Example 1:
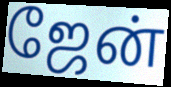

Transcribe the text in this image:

ஜேன்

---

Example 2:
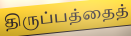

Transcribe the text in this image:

திருப்பத்தைத்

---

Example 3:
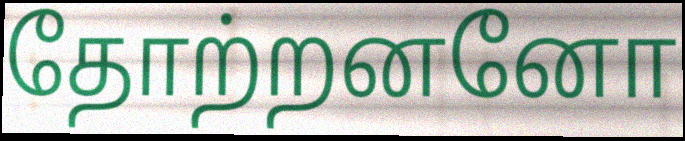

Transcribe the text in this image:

தோற்றனனோ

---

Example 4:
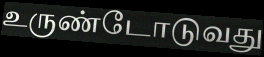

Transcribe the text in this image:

உருண்டோடுவது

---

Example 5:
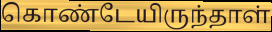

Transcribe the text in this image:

கொண்டேயிருந்தாள்